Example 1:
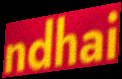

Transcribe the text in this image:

ndhai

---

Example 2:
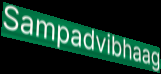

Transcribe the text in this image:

Sampadvibhaag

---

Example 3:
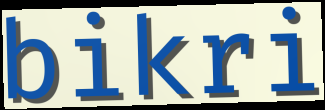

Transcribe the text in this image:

bikri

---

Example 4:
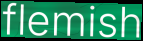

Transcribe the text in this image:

flemish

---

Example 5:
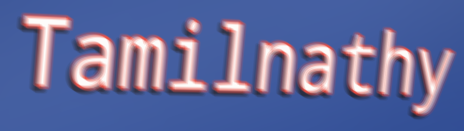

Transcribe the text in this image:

Tamilnathy